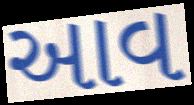
આવ